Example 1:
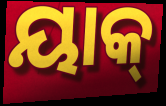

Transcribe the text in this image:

ୟାକ୍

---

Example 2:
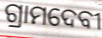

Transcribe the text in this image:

ଗ୍ରାମଦେବୀ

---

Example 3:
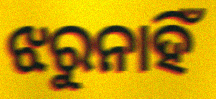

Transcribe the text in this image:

ଝରୁନାହିଁ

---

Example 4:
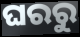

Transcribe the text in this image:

ଘରରୁ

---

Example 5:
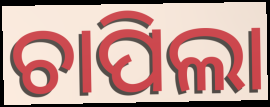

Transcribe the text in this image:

ଚାପିଲା